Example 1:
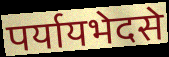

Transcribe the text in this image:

पर्यायभेदसे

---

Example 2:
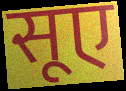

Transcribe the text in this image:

सूए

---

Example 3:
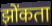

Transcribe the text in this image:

झोंकता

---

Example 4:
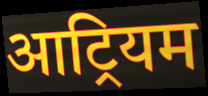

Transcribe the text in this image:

आट्रियम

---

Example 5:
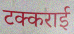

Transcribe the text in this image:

टक्कराई